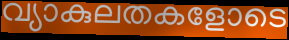
വ്യാകുലതകളോടെ